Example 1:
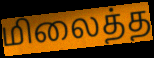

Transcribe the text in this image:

மிலைத்த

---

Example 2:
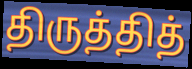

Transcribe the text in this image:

திருத்தித்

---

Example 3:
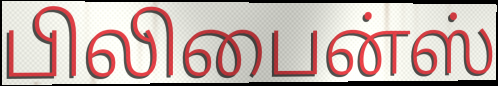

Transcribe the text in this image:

பிலிபைன்ஸ்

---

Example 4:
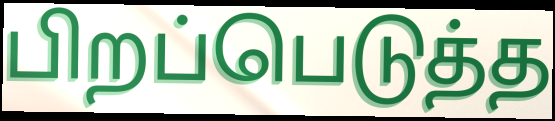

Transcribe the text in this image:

பிறப்பெடுத்த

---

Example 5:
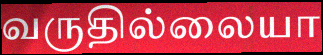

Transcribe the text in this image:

வருதில்லையா